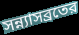
সন্ন্যাসব্রতের